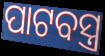
ପାଟବସ୍ତ୍ର